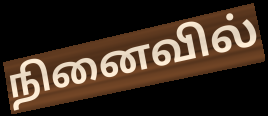
நினைவில்